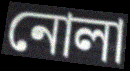
নোলা